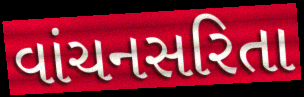
વાંચનસરિતા